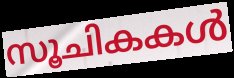
സൂചികകൾ